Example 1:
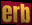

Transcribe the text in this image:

erb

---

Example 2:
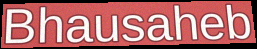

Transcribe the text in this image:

Bhausaheb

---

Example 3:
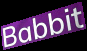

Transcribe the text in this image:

Babbit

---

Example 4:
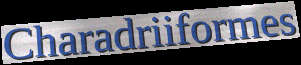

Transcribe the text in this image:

Charadriiformes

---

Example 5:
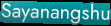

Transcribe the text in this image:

Sayanangshu